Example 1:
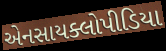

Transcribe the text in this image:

એનસાયક્લોપીડિયા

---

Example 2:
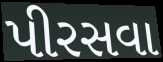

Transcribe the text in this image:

પીરસવા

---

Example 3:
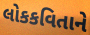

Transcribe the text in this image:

લોકકવિતાને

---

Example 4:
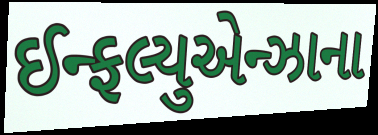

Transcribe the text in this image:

ઈન્ફલ્યુએન્ઝાના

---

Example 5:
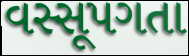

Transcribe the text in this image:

વસ્સૂપગતા